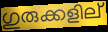
ഗുരുക്കളില്